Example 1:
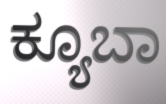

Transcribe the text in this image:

ಕ್ಯೂಬಾ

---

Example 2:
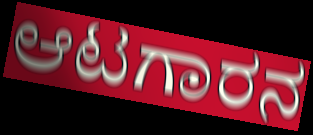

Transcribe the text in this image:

ಆಟಗಾರನ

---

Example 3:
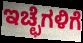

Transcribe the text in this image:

ಇಚ್ಛೆಗಳಿಗೆ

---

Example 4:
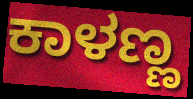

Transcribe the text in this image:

ಕಾಳಣ್ಣ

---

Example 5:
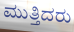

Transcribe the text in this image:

ಮುತ್ತಿದರು